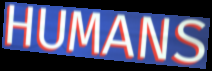
HUMANS